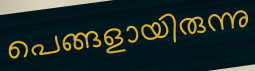
പെങ്ങളായിരുന്നു